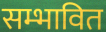
सम्भावित